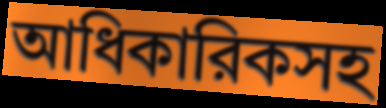
আধিকারিকসহ